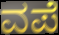
ವಪೆ